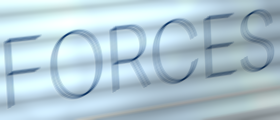
FORCES